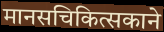
मानसचिकित्सकाने